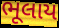
ભૂલાય